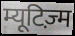
म्यूटिज़्म